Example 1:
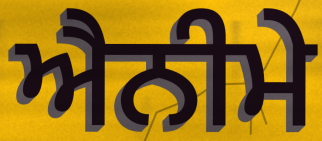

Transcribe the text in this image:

ਐਨੀਮੇ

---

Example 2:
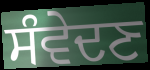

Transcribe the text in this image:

ਸੰਵੇਦਣ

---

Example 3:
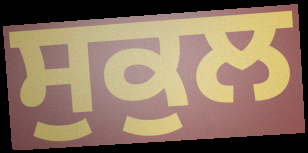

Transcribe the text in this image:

ਸੁਕੁਲ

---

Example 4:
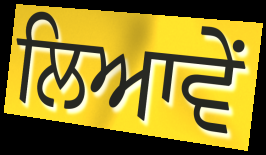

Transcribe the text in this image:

ਲਿਆਵੇਂ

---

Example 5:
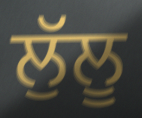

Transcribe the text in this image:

ਲੁੱਲੂ